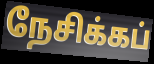
நேசிக்கப்